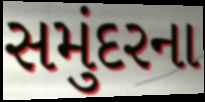
સમુંદરના